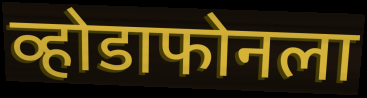
व्होडाफोनला